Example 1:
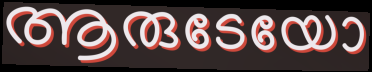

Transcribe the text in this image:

ആരുടേയോ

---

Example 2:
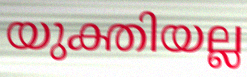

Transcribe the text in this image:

യുക്തിയല്ല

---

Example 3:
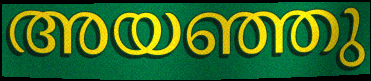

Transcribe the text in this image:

അയഞ്ഞു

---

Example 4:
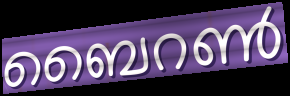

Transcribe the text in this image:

ബൈറൺ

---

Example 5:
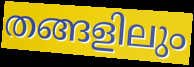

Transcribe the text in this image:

തങ്ങളിലും